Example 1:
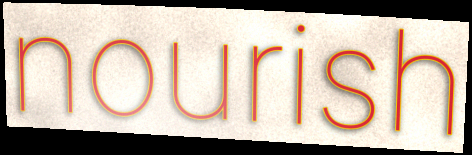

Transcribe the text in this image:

nourish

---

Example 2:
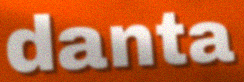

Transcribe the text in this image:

danta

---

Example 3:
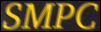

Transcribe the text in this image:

SMPC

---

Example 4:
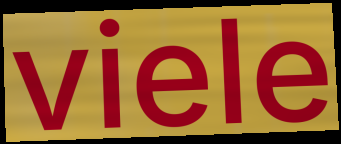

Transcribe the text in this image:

viele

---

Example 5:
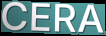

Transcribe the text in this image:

CERA